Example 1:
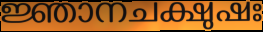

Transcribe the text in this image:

ജ്ഞാനചക്ഷുഷഃ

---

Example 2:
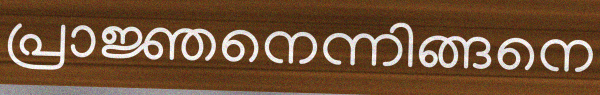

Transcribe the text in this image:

പ്രാജ്ഞനെന്നിങ്ങനെ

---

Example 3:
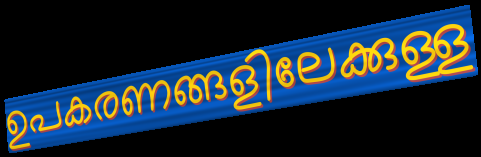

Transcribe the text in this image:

ഉപകരണങ്ങളിലേക്കുള്ള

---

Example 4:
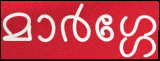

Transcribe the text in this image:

മാർഗ്ഗേ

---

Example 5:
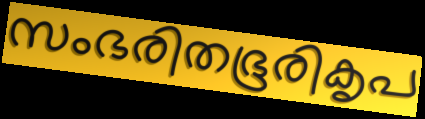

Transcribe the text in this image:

സംഭരിതഭൂരികൃപ